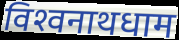
विश्वनाथधाम